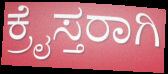
ಕ್ರೈಸ್ತರಾಗಿ